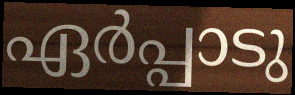
ഏർപ്പാടു